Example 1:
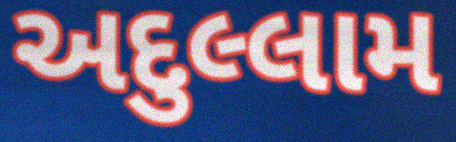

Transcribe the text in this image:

અદુલ્લામ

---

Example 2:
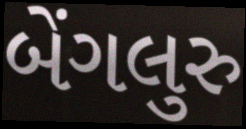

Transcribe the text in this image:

બેંગલુરુ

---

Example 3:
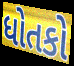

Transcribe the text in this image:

ધોતકો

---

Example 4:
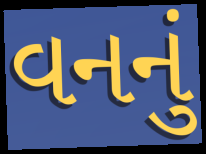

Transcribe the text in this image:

વનનું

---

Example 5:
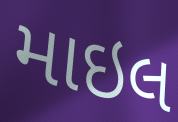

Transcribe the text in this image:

માઇલ